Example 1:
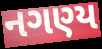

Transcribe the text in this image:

નગણ્ય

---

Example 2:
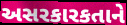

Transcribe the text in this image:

અસરકારકતાને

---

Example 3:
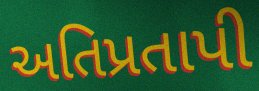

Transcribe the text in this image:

અતિપ્રતાપી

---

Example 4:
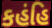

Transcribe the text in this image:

કહંહિ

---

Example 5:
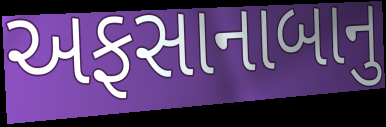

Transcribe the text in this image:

અફસાનાબાનુ